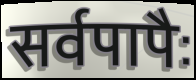
सर्वपापैः